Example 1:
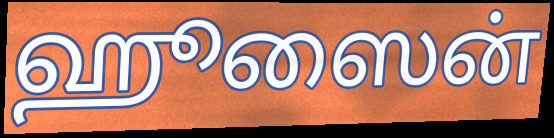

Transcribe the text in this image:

ஹூஸைன்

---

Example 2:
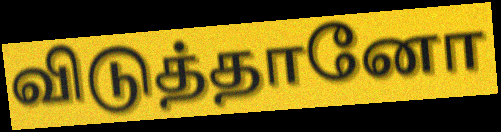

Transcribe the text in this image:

விடுத்தானோ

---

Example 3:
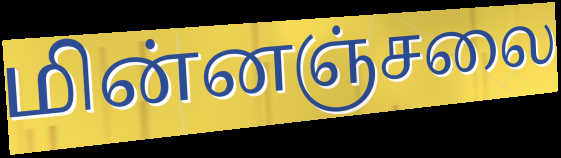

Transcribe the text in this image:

மின்னஞ்சலை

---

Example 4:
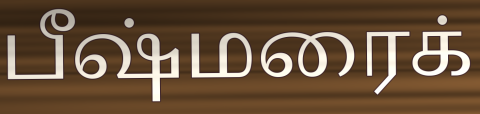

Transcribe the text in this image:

பீஷ்மரைக்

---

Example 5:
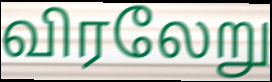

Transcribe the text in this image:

விரலேறு